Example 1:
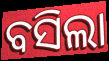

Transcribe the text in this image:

ବସିଲା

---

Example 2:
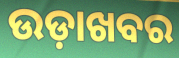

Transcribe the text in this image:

ଉଡ଼ାଖବର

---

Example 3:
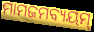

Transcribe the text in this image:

ମାମଜମବ୍ୟୟମ୍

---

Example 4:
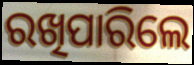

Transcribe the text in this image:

ରଖିପାରିଲେ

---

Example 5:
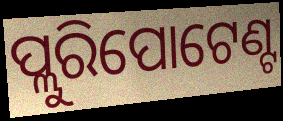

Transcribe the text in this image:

ପ୍ଲୁରିପୋଟେଣ୍ଟ